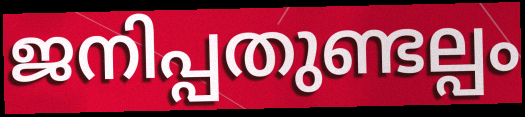
ജനിപ്പതുണ്ടല്പം